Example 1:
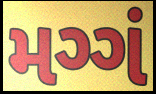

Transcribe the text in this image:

મગ્ગં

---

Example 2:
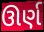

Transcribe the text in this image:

ઊર્ણ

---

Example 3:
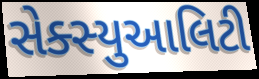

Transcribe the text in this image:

સેક્સ્યુઆલિટી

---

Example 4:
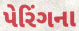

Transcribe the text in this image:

પેરિંગના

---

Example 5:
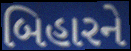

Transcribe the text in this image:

બિહારને